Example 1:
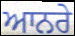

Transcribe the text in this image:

ਆਨਰੇ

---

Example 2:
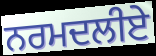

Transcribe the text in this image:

ਨਰਮਦਲੀਏ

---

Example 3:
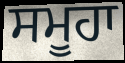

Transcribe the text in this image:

ਸਮੂਹਾ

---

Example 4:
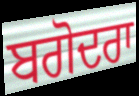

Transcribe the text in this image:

ਬਗੋਦਰਾ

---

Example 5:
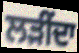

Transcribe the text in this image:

ਲੜੀਂਦਾ